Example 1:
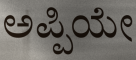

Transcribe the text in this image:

ಅಪ್ಪಿಯೇ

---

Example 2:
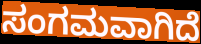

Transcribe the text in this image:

ಸಂಗಮವಾಗಿದೆ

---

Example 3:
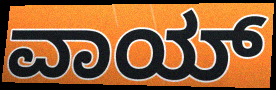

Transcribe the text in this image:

ವಾಯ್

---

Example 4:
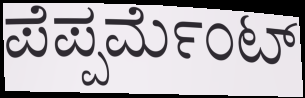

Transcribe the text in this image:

ಪೆಪ್ಪರ್ಮೆಂಟ್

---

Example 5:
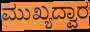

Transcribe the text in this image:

ಮುಖ್ಯದ್ವಾರ